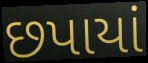
છપાયાં